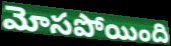
మోసపోయింది